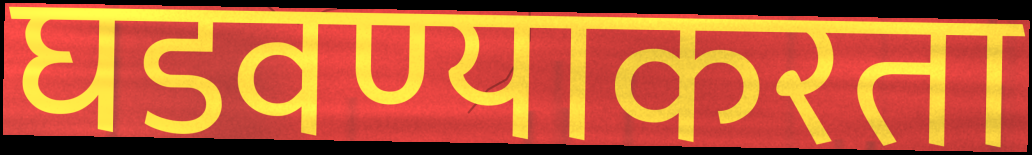
घडवण्याकरता